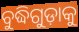
ବୁଦ୍ଧିଗୁଡ଼ାକୁ